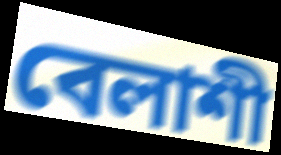
বেলাশী